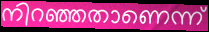
നിറഞ്ഞതാണെന്ന്